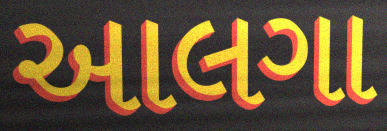
આલગા